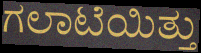
ಗಲಾಟೆಯಿತ್ತು